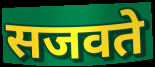
सजवते